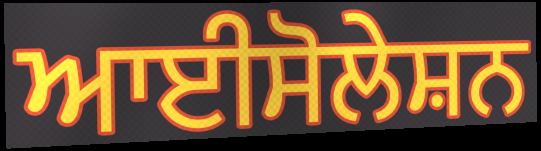
ਆਈਸੋਲੇਸ਼ਨ